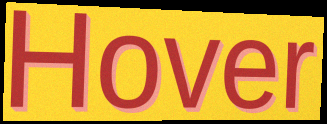
Hover